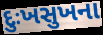
દુઃખસુખના